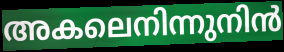
അകലെനിന്നുനിൻ